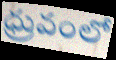
ధ్రువంలో